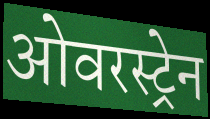
ओवरस्ट्रेन